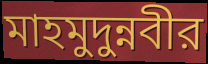
মাহমুদুন্নবীর